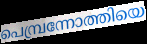
പെമ്പ്രന്നോത്തിയെ